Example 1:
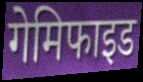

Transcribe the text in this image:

गेमिफाइड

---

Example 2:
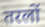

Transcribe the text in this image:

तरलों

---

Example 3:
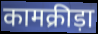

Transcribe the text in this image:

कामक्रीड़ा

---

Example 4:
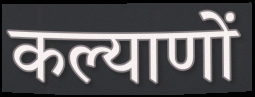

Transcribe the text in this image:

कल्याणों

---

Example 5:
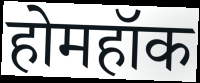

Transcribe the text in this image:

होमहॉक